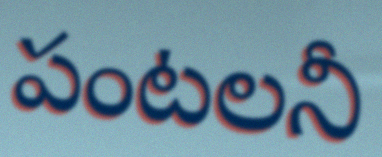
పంటలనీ